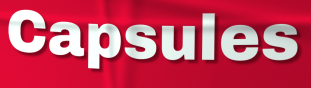
Capsules